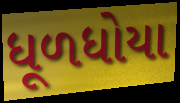
ધૂળધોયા